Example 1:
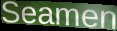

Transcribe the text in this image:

Seamen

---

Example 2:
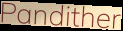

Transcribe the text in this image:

Pandither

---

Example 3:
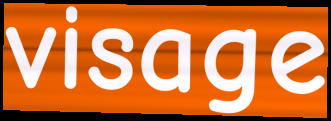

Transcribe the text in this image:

visage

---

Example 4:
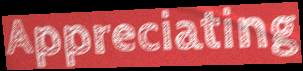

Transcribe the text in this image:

Appreciating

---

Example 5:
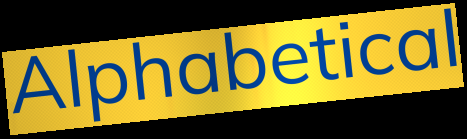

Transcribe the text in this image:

Alphabetical